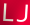
LJ